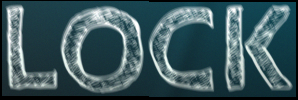
LOCK